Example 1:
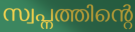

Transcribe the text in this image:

സ്വപ്നത്തിന്റെ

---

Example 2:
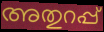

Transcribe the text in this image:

അതുറപ്പ്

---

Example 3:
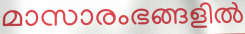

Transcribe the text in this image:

മാസാരംഭങ്ങളിൽ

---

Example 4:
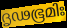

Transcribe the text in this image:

ദൃഢഭൂമിഃ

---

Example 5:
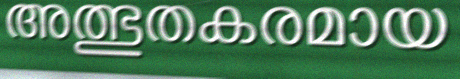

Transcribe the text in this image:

അത്ഭുതകരമായ